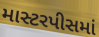
માસ્ટરપીસમાં